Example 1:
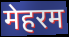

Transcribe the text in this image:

मेहरम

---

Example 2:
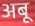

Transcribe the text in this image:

अबू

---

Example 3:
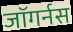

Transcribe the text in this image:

जॉगर्नस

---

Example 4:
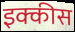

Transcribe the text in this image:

इक्कीस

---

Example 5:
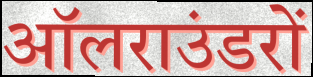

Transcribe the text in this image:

ऑलराउंडरों